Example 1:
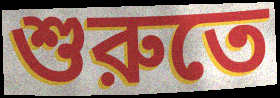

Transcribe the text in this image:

শুরুতে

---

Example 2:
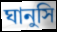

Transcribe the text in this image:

ঘানুসি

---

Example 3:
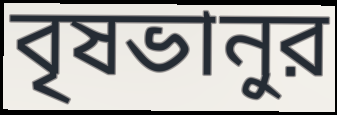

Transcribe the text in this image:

বৃষভানুর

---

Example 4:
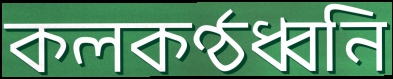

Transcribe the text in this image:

কলকণ্ঠধ্বনি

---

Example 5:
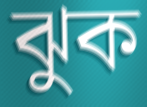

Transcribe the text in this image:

ঝুক